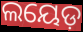
ଲୟେଡ଼